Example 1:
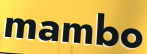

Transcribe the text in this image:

mambo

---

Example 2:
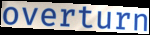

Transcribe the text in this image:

overturn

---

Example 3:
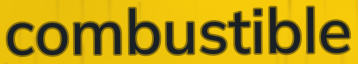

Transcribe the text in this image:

combustible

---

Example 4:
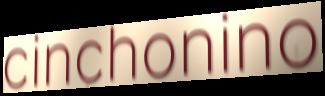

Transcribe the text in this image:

cinchonino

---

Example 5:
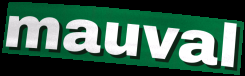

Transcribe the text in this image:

mauval